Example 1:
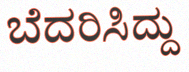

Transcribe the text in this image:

ಬೆದರಿಸಿದ್ದು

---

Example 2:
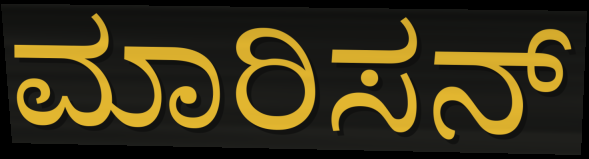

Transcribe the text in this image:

ಮಾರಿಸನ್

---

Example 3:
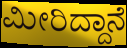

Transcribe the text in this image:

ಮೀರಿದ್ದಾನೆ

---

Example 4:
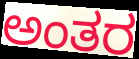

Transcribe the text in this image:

ಅಂತರ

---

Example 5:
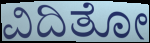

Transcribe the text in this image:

ವಿದಿತೋ